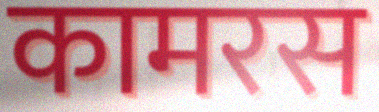
कामरस